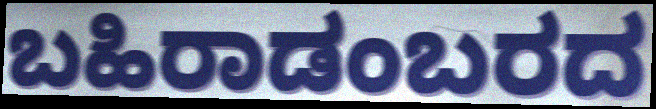
ಬಹಿರಾಡಂಬರದ